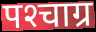
पश्चाग्र